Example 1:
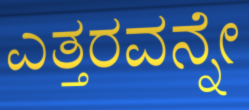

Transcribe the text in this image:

ಎತ್ತರವನ್ನೇ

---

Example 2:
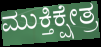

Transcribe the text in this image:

ಮುಕ್ತಿಕ್ಷೇತ್ರ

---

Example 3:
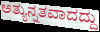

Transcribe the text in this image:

ಅತ್ಯುನ್ನತವಾದದ್ದು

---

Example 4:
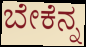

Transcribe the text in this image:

ಬೇಕೆನ್ನ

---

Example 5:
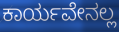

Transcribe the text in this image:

ಕಾರ್ಯವೇನಲ್ಲ